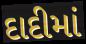
દાદીમાં